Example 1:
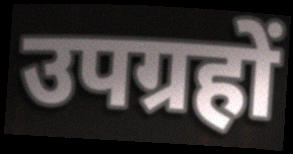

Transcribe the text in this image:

उपग्रहों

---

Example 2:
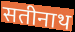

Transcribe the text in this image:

सतीनाथ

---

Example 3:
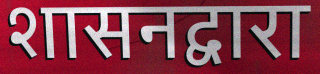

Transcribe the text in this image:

शासनद्वारा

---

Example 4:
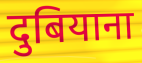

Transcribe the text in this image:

दुबियाना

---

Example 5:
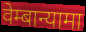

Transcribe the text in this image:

वेम्बान्यामा